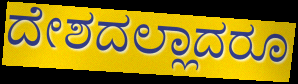
ದೇಶದಲ್ಲಾದರೂ